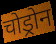
चोड्रोन